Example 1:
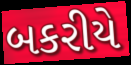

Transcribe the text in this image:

બકરીયે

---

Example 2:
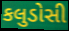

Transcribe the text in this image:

કલુડોસી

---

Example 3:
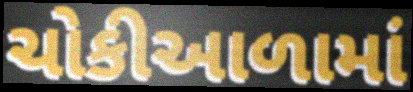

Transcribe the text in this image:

ચોકીઆળામાં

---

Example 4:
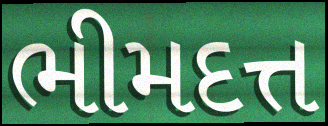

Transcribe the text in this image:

ભીમદત્ત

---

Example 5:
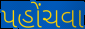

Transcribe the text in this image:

પહોંચવા